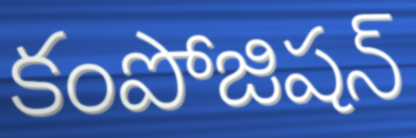
కంపోజిషన్